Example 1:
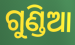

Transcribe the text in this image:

ଗୁଣ୍ଡିଆ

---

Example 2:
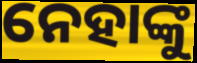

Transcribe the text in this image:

ନେହାଙ୍କୁ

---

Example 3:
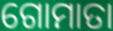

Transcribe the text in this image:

ଗୋମାତା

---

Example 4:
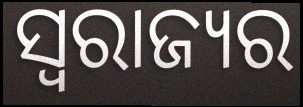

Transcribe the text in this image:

ସ୍ୱରାଜ୍ୟର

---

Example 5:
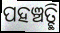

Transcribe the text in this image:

ପହଞ୍ଚତ୍ଛି